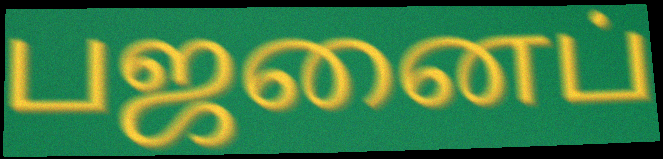
பஜனைப்